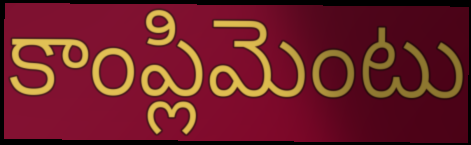
కాంప్లిమెంటు